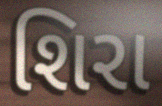
શિરા